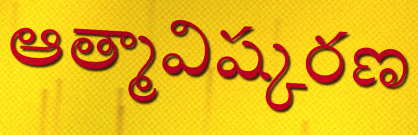
ఆత్మావిష్కరణ